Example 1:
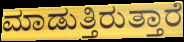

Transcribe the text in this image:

ಮಾಡುತ್ತಿರುತ್ತಾರೆ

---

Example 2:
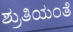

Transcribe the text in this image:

ಶ್ರುತಿಯಂತೆ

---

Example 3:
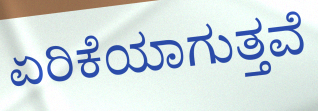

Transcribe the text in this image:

ಏರಿಕೆಯಾಗುತ್ತವೆ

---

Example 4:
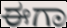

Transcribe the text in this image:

ಈಗಾ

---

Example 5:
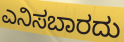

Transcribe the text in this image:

ಎನಿಸಬಾರದು